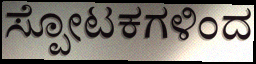
ಸ್ಪೋಟಕಗಳಿಂದ